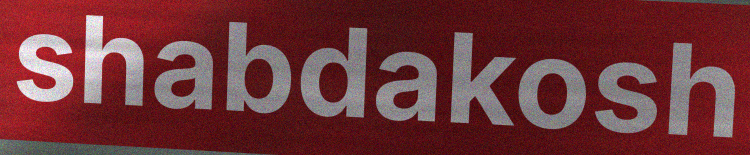
shabdakosh